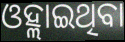
ଓହ୍ଲାଇଥିବା